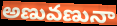
అణువణునా